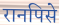
रानपिसे